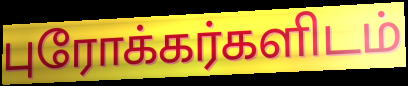
புரோக்கர்களிடம்